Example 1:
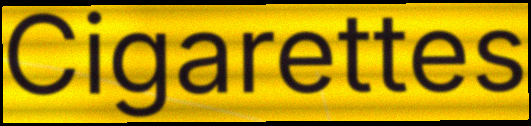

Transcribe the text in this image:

Cigarettes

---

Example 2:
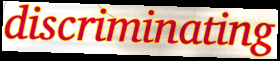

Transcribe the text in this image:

discriminating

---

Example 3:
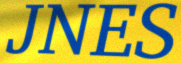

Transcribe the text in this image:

JNES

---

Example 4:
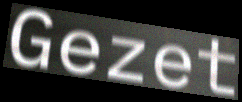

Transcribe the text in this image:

Gezet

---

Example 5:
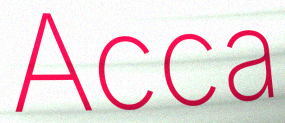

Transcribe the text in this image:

Acca